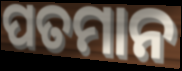
ପତମାନ